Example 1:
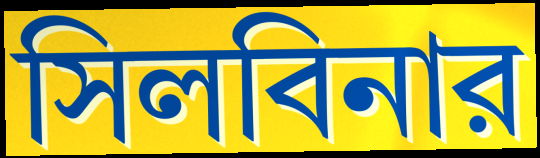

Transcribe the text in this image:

সিলবিনার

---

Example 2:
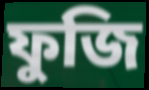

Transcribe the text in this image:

ফুজি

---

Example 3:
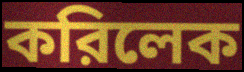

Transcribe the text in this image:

করিলেক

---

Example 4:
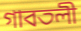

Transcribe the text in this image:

গাবতলী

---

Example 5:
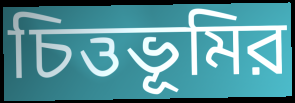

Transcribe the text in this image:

চিত্তভূমির